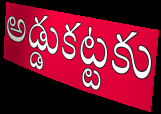
అడ్డుకట్టకు